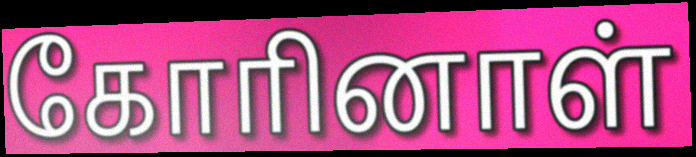
கோரினாள்